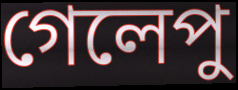
গেলেপু